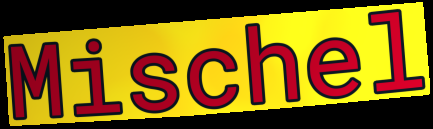
Mischel